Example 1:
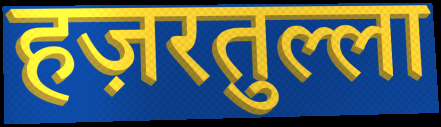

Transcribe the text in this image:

हज़रतुल्ला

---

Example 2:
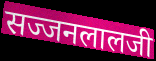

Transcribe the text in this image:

सज्जनलालजी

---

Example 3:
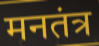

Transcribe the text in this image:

मनतंत्र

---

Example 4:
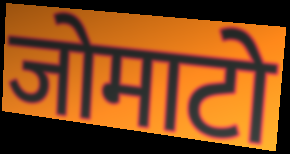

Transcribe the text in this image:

जोमाटो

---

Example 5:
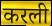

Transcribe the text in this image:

करली